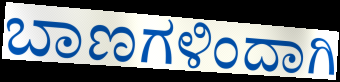
ಬಾಣಗಳಿಂದಾಗಿ